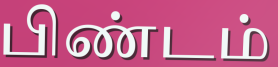
பிண்டம்